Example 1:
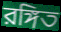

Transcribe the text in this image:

রঙ্গিত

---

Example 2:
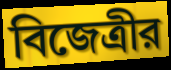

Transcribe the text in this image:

বিজেত্রীর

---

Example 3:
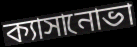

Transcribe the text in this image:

ক্যাসানোভা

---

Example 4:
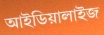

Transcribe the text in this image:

আইডিয়ালাইজ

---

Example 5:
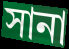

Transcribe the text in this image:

সানা